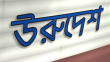
উরুদেশ